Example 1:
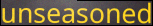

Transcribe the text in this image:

unseasoned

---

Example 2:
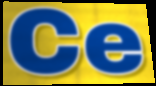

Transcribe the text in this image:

Ce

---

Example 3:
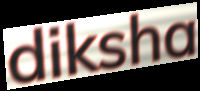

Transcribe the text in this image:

diksha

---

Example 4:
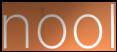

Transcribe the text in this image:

nool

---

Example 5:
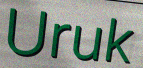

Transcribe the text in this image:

Uruk